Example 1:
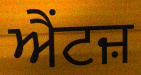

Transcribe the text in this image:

ਐਂਟਜ਼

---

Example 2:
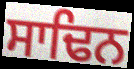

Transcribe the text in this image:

ਸਾਢਿਨ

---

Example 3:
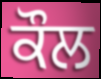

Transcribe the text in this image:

ਕੌਲ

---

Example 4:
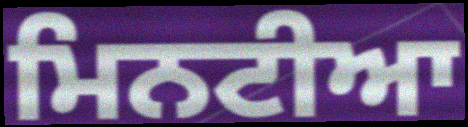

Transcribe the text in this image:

ਮਿਨਟੀਆ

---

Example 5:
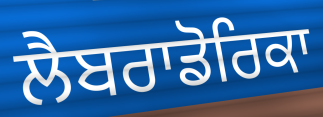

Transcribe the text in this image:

ਲੈਬਰਾਡੋਰਿਕਾ